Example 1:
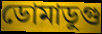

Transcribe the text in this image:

ডোমাডুগু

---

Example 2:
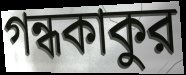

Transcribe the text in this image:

গন্ধকাকুর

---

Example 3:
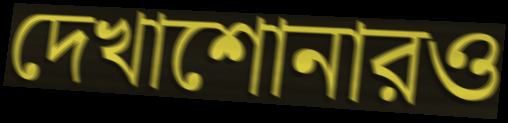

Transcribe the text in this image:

দেখাশোনারও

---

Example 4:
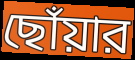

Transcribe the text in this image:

ছোঁয়ার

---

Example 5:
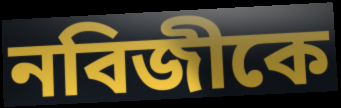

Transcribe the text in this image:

নবিজীকে